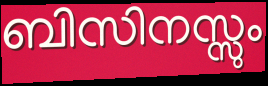
ബിസിനസ്സും